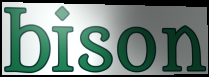
bison